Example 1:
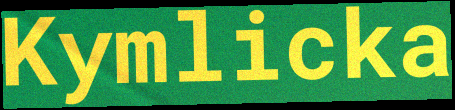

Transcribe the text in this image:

Kymlicka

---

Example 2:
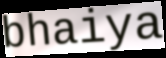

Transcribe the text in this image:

bhaiya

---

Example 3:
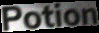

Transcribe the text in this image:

Potion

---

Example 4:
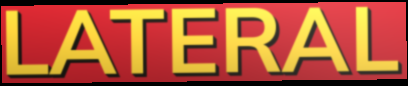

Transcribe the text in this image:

LATERAL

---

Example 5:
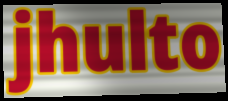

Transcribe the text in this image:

jhulto